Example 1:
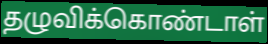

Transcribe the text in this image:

தழுவிக்கொண்டாள்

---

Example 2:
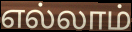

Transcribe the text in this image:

எல்லாம்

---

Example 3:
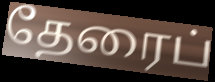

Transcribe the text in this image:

தேரைப்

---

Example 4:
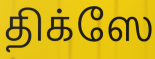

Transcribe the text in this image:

திக்ஸே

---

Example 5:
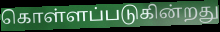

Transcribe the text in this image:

கொள்ளப்படுகின்றது